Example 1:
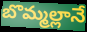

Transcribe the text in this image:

బొమ్మల్లానే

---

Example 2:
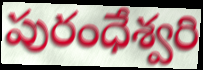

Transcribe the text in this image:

పురంధేశ్వరి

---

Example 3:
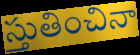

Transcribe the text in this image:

స్తుతించినా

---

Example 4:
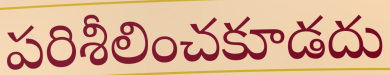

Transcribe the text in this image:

పరిశీలించకూడదు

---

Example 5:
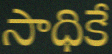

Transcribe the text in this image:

సాధికే